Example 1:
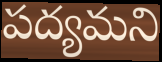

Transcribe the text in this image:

పద్యమని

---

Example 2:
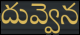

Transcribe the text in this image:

దువ్వెన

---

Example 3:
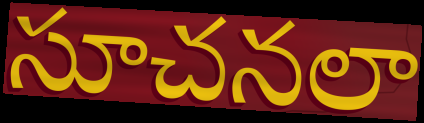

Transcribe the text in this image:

సూచనలా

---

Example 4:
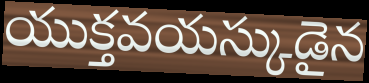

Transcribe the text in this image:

యుక్తవయస్కుడైన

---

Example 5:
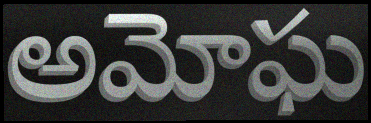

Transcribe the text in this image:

అమోఘ